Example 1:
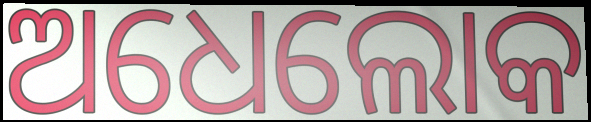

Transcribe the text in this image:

ଅଧେଲୋକ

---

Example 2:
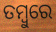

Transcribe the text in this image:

ତମ୍ବୁରେ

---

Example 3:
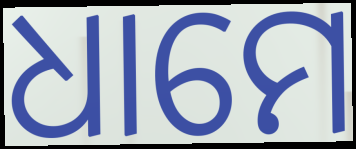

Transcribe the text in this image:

ଧାମେ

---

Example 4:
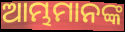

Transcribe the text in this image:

ଆମ୍ଭମାନଙ୍କ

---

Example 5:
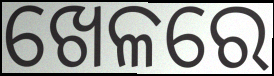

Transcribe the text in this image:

ଖେଳରେ